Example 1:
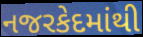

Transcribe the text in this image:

નજરકેદમાંથી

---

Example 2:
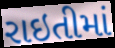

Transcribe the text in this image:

રાઇતીમાં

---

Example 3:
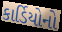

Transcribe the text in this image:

કાર્ડિયોનો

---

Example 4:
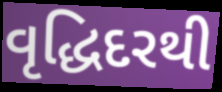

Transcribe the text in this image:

વૃદ્ધિદરથી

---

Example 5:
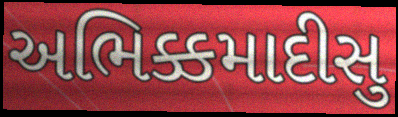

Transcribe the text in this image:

અભિક્કમાદીસુ